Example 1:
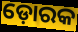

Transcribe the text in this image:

ଡ଼ୋରକ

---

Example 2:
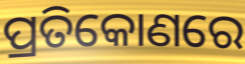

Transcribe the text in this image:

ପ୍ରତିକୋଣରେ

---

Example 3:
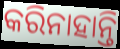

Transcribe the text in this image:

କରିନାହାନ୍ତି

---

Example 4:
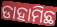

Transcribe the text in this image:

ଡାହାମିଛ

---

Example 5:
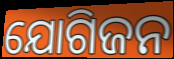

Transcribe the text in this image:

ଯୋଗିଜନ